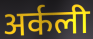
अर्कली